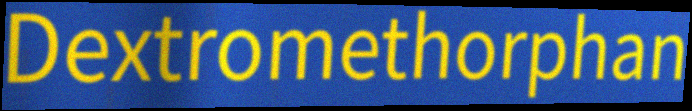
Dextromethorphan